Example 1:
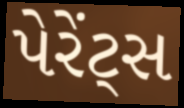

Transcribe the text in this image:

પેરેંટ્સ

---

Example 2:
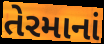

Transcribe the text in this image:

તેરમાનાં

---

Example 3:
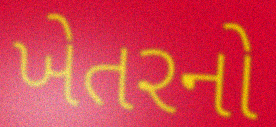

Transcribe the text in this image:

ખેતરનો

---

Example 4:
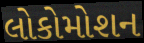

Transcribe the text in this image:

લોકોમોશન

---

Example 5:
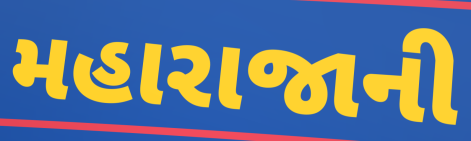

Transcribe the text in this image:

મહારાજાની